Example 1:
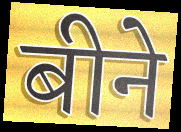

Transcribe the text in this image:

बीने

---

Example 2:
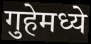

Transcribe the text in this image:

गुहेमध्ये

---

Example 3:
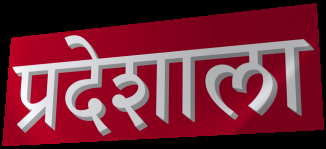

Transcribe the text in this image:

प्रदेशाला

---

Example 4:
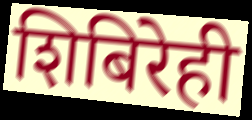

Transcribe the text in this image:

शिबिरेही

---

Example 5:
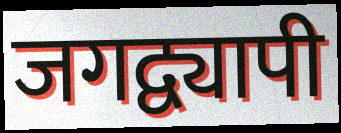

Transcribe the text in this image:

जगद्व्यापी